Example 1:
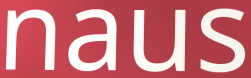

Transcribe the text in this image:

naus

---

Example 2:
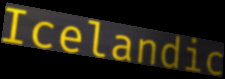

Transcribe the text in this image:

Icelandic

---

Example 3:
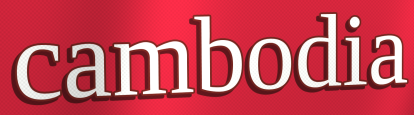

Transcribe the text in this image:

cambodia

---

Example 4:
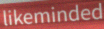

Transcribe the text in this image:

likeminded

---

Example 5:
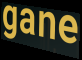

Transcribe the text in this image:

gane